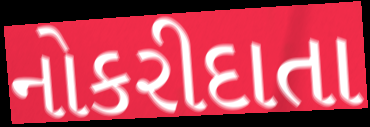
નોકરીદાતા